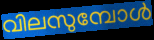
വിലസുമ്പോൾ